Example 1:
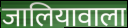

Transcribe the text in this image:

जालियावाला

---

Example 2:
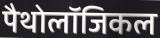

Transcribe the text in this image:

पैथोलॉजिकल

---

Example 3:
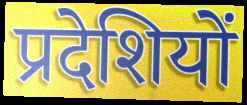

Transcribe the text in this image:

प्रदेशियों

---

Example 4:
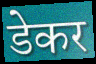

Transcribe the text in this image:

डेकर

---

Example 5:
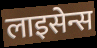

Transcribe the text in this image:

लाइसेन्स